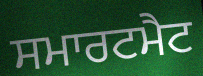
ਸਮਾਰਟਮੈਟ